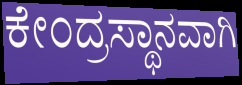
ಕೇಂದ್ರಸ್ಥಾನವಾಗಿ